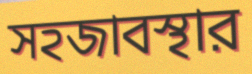
সহজাবস্থার